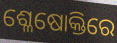
ଶ୍ଳେଷୋକ୍ତିରେ